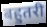
बहुतरी